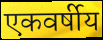
एकवर्षीय